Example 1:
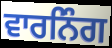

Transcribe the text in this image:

ਵਾਰਨਿੰਗ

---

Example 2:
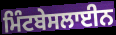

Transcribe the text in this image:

ਮਿੰਟਬੇਸਲਾਈਨ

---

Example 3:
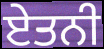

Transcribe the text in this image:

ਏਤਨੀ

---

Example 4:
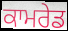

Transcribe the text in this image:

ਕਾਮਰੇਡ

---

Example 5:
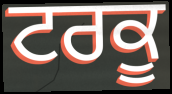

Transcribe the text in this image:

ਟਰਕੂ